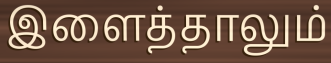
இளைத்தாலும்